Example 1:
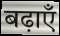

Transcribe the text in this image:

बढ़ाएँ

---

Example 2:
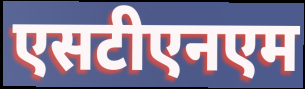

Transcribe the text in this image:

एसटीएनएम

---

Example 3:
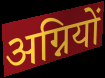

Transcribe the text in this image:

अग्नियों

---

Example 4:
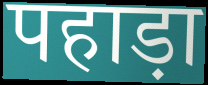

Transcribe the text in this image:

पहाड़ा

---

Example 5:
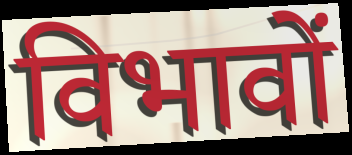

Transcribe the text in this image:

विभावों